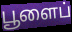
பூளைப்